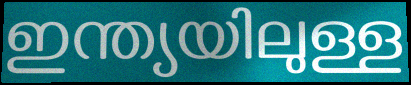
ഇന്ത്യയിലുള്ള